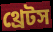
থ্রেটস